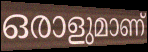
ഒരാളുമാണ്